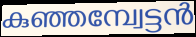
കുഞ്ഞമ്പ്വേട്ടൻ